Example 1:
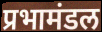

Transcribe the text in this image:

प्रभामंडल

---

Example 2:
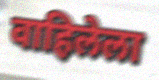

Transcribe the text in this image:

वाहिलेला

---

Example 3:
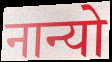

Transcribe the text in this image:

नान्यो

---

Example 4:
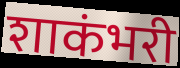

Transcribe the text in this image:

शाकंभरी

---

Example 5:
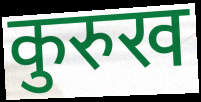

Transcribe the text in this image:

कुरुख